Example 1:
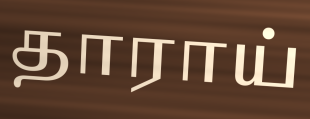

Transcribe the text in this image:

தாராய்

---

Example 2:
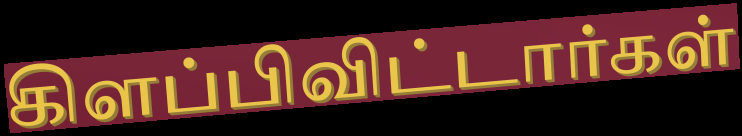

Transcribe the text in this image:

கிளப்பிவிட்டார்கள்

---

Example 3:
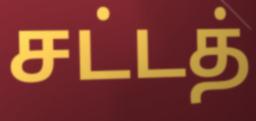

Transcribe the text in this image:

சட்டத்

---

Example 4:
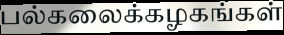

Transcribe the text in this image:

பல்கலைக்கழகங்கள்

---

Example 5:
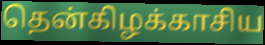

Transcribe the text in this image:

தென்கிழக்காசிய